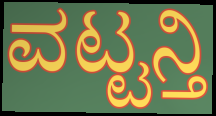
ವಟ್ಟನ್ತಿ